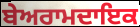
ਬੇਅਰਾਮਦਾਇਕ